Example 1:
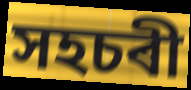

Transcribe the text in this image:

সহচৰী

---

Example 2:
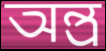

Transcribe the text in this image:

অন্ত্ৰ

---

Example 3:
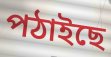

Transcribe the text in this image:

পঠাইছে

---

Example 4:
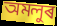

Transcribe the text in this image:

অমলুৰ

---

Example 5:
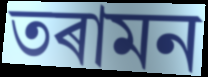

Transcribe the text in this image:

তৰামন